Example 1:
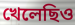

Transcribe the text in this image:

খেলেছিও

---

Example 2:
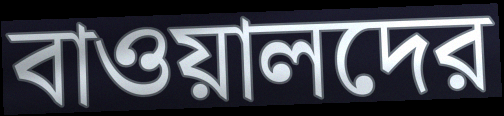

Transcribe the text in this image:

বাওয়ালদের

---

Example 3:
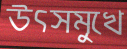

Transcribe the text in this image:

উৎসমুখে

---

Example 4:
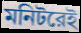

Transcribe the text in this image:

মনিটরেই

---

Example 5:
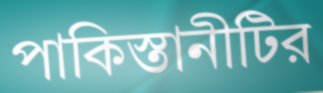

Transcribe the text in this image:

পাকিস্তানীটির